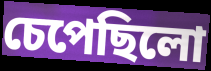
চেপেছিলো